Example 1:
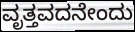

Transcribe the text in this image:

ವೃತ್ತವದನೇಂದು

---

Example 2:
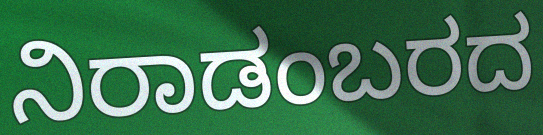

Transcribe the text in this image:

ನಿರಾಡಂಬರದ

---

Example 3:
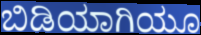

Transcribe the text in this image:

ಬಿಡಿಯಾಗಿಯೂ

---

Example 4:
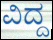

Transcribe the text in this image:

ವಿದ್ದ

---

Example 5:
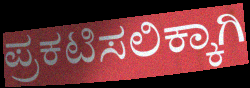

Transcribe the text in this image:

ಪ್ರಕಟಿಸಲಿಕ್ಕಾಗಿ